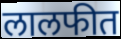
लालफीत